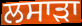
ਲਸਾੜਾ